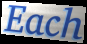
Each